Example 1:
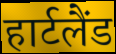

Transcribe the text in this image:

हार्टलैंड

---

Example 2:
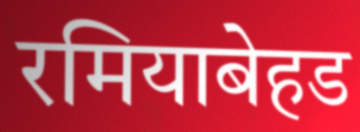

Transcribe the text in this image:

रमियाबेहड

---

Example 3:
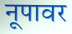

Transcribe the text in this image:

नूपावर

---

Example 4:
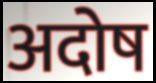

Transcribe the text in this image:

अदोष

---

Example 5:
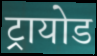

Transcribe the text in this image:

ट्रायोड